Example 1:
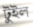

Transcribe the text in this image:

টুইল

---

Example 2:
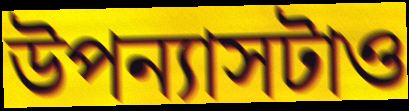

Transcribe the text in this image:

উপন্যাসটাও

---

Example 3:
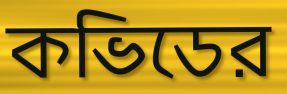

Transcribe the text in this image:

কভিডের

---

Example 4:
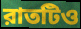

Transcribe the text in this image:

রাতটিও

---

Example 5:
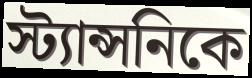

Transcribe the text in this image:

স্ট্যান্সনিকে